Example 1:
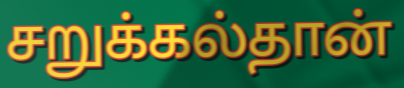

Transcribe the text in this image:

சறுக்கல்தான்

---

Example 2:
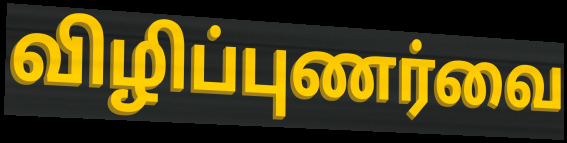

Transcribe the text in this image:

விழிப்புணர்வை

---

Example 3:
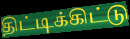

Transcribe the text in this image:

திட்டிக்கிட்டு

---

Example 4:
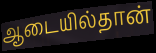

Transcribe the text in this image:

ஆடையில்தான்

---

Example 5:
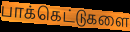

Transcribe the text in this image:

பாக்கெட்டுகளை